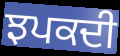
ਝਪਕਦੀ